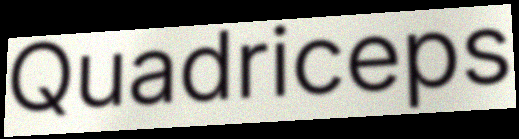
Quadriceps